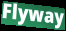
Flyway